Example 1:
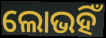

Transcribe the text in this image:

ଲୋଭହିଁ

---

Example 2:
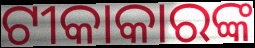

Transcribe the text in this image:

ଟୀକାକାରଙ୍କ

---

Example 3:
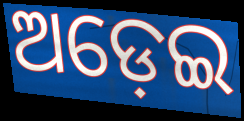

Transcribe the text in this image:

ଅଡ଼େଇ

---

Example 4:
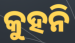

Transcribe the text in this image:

କୁହନି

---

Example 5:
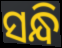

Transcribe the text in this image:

ସନ୍ଧି